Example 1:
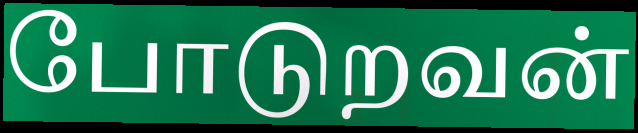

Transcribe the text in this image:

போடுறவன்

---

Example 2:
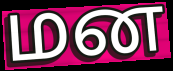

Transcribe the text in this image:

மன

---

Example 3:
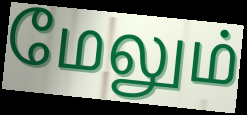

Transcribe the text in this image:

மேலும்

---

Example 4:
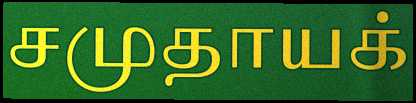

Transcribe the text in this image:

சமுதாயக்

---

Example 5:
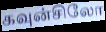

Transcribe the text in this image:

கவுன்சிலோ